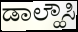
ಡಾಲ್ಹೌಸಿ